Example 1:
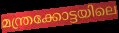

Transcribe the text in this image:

മന്ത്രക്കോട്ടയിലെ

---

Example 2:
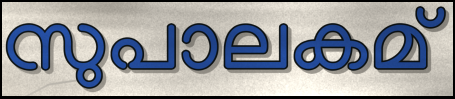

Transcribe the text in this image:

സുപാലകമ്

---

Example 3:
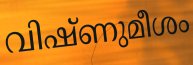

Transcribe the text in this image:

വിഷ്ണുമീശം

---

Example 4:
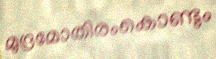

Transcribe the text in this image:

മുദ്രമോതിരംകൊണ്ടും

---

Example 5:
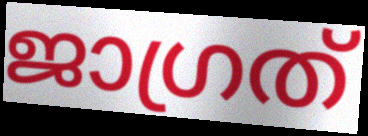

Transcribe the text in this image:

ജാഗ്രത്